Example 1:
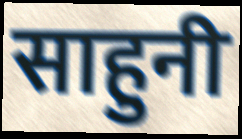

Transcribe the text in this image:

साहुनी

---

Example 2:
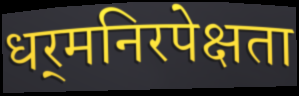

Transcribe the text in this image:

धर्मनिरपेक्षता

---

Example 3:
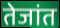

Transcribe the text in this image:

तेजांत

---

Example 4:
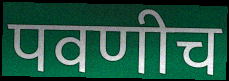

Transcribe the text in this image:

पवणीच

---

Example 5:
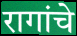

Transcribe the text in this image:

रागांचे